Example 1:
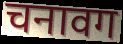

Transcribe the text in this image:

चनावग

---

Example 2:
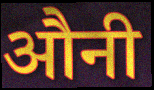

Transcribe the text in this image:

औनी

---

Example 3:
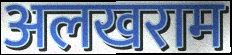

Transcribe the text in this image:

अलखराम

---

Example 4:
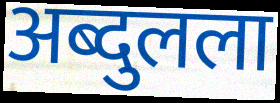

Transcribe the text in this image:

अब्दुलला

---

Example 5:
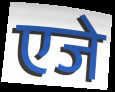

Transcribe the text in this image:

एजे